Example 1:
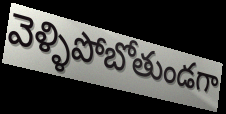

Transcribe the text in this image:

వెళ్ళిపోబోతుండగా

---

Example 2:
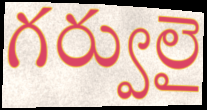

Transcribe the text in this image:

గర్వులై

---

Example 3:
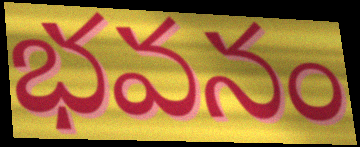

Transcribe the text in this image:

భవనం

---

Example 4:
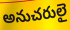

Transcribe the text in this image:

అనుచరులై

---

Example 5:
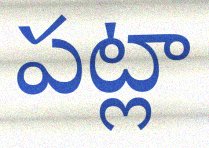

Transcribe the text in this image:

పట్లా